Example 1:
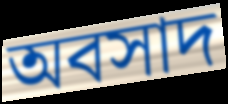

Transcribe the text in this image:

অবসাদ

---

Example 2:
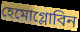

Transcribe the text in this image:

হেমোগ্লোবিন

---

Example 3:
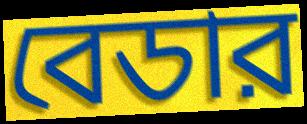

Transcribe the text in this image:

বেডার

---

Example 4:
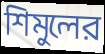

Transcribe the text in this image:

শিমুলের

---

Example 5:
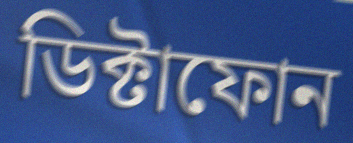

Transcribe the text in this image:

ডিক্টাফোন